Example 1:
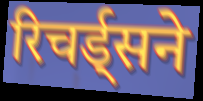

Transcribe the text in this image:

रिचर्ड्सने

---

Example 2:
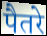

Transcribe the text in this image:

पैतरे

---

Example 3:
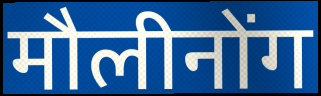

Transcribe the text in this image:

मौलीनोंग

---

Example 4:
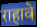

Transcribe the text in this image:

राहावे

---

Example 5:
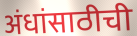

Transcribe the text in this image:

अंधांसाठीची